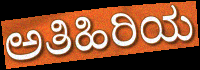
ಅತಿಹಿರಿಯ